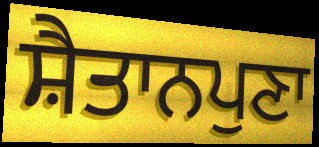
ਸ਼ੈਤਾਨਪੁਣਾ